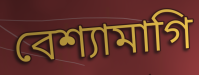
বেশ্যামাগি